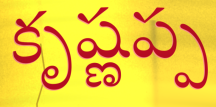
కృష్ణప్ప